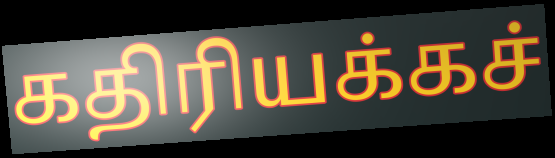
கதிரியக்கச்